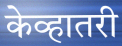
केव्हातरी